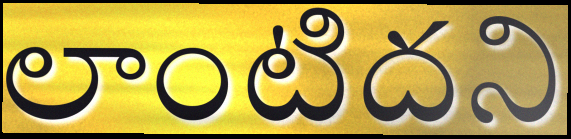
లాంటిదని